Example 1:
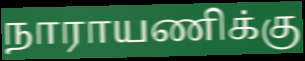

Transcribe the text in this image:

நாராயணிக்கு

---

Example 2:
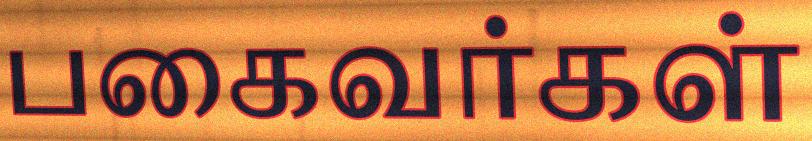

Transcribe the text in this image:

பகைவர்கள்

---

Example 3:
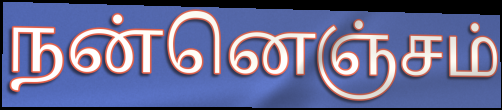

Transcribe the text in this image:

நன்னெஞ்சம்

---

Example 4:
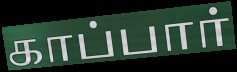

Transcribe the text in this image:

காப்பார்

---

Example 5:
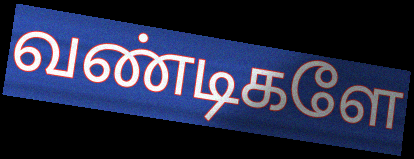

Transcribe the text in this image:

வண்டிகளே